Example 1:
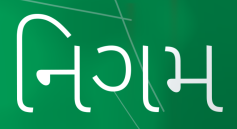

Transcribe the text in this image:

નિગમ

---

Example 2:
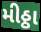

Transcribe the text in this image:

મીઠ્ઠા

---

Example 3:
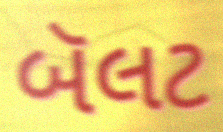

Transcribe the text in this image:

બૅલટ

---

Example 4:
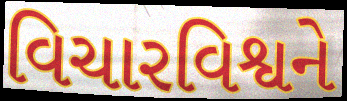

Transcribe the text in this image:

વિચારવિશ્વને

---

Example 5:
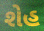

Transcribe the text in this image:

શેહ